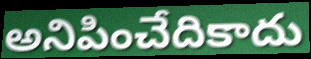
అనిపించేదికాదు